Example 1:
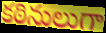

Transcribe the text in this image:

కఠినులుగా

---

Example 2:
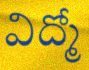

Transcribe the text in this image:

విద్మో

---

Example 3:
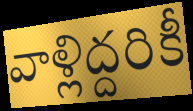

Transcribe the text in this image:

వాళ్లిద్దరికీ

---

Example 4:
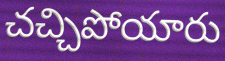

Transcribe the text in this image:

చచ్చిపోయారు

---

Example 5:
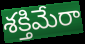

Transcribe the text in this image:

శక్తిమేరా